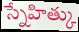
స్నేహిత్కు